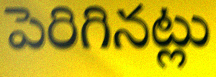
పెరిగినట్లు